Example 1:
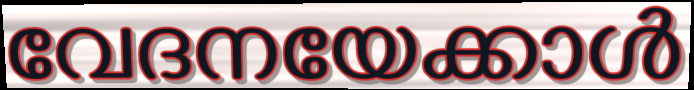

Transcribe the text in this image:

വേദനയേക്കാൾ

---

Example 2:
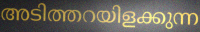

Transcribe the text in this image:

അടിത്തറയിളക്കുന്ന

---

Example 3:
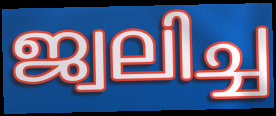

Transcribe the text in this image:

ജ്വലിച്ച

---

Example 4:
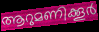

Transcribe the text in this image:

ആറുമണിക്കൂർ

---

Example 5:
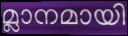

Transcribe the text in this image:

മ്ലാനമായി